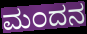
ಮಂದನ